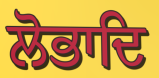
ਲੋਭਾਦਿ